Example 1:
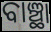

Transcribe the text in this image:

ବାଞ୍ଛା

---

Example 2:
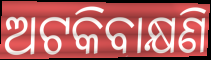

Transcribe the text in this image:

ଅଟକିବାକ୍ଷଣି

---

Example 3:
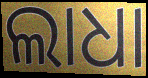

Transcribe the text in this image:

ଲାଧା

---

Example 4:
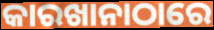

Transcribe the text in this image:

କାରଖାନାଠାରେ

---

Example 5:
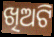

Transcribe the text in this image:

ଖିଅଟି